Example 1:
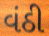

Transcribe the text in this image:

વંઠી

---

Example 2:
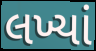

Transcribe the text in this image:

લખ્યાં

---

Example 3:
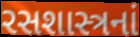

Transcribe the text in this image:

રસશાસ્ત્રનાં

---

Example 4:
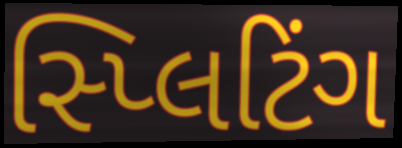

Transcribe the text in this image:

સ્પ્લિટિંગ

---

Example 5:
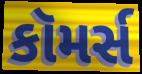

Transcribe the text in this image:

કૉમર્સ